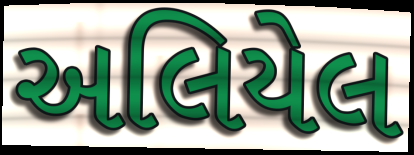
અલિયેલ